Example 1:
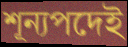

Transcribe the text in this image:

শূন্যপদেই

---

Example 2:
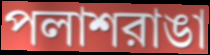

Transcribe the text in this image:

পলাশরাঙা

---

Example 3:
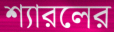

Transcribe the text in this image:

শ্যারলের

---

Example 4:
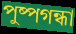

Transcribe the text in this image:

পুষ্পগন্ধা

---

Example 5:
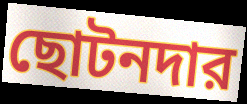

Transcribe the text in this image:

ছোটনদার